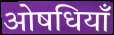
ओषधियाँ